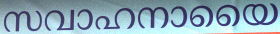
സവാഹനായൈ